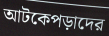
আটকেপড়াদের